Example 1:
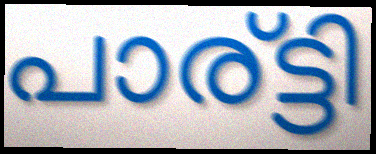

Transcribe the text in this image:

പാര്ട്ടി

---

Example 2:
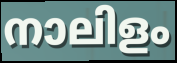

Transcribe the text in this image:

നാലിളം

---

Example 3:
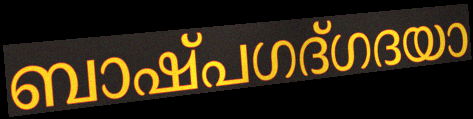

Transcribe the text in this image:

ബാഷ്പഗദ്ഗദയാ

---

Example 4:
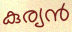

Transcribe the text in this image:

കുര്യൻ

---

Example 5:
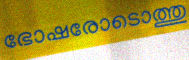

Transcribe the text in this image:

ഭോഷരോടൊത്തു